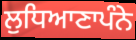
ਲੁਧਿਆਣਾਪੰਨੇ